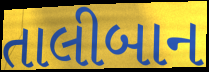
તાલીબાન